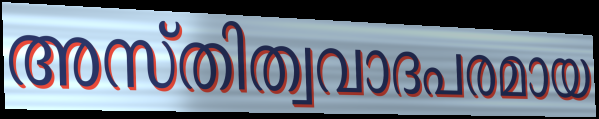
അസ്തിത്വവാദപരമായ